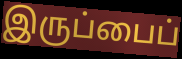
இருப்பைப்